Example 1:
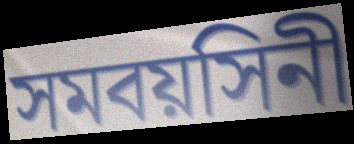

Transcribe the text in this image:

সমবয়সিনী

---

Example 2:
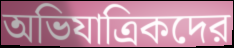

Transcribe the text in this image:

অভিযাত্রিকদের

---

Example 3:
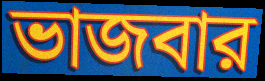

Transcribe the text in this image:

ভাজবার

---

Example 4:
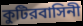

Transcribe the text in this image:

কুটিরবাসিনী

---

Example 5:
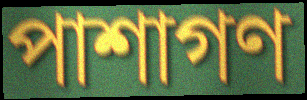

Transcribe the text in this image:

পাশাগণ